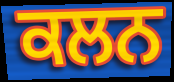
ਕਲਨ